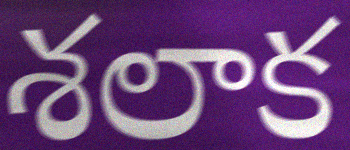
శలాక